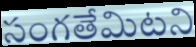
సంగతేమిటని